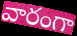
వారంగా